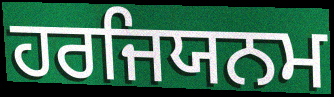
ਹਰਜਿਯਨਮ